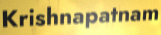
Krishnapatnam